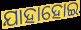
ଯାହାହୋଇ